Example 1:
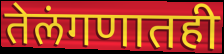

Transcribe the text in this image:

तेलंगणातही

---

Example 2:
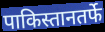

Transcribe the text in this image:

पाकिस्तानतर्फे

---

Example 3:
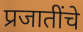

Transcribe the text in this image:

प्रजातींचे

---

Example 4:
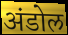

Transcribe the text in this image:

अंडोल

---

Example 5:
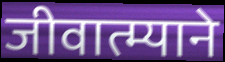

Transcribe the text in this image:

जीवात्म्याने